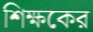
শিক্ষকের